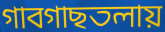
গাবগাছতলায়